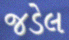
જડેલ